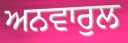
ਅਨਵਾਰੁਲ